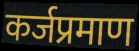
कर्जप्रमाण